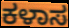
ಕಳಾಸ